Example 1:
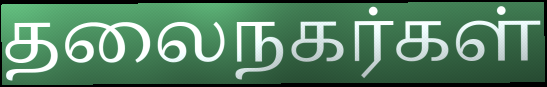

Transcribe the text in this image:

தலைநகர்கள்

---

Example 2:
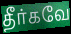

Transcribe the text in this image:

தீர்கவே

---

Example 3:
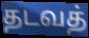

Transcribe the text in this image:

தடவத்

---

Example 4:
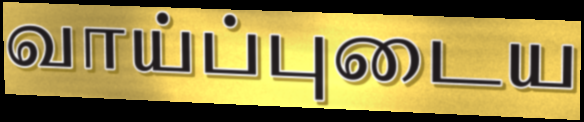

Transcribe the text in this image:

வாய்ப்புடைய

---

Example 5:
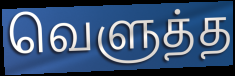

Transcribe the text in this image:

வெளுத்த